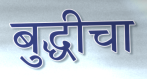
बुद्धीचा